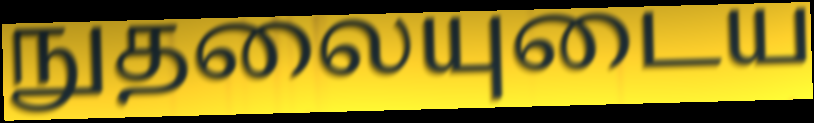
நுதலையுடைய